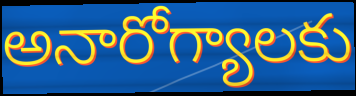
అనారోగ్యాలకు